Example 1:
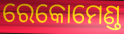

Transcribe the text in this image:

ରେକୋମେଣ୍ଡ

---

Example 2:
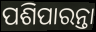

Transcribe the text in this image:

ପଶିପାରନ୍ତା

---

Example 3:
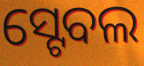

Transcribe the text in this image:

ସ୍ଟେବଲ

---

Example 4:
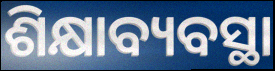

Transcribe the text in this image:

ଶିକ୍ଷାବ୍ୟବସ୍ଥା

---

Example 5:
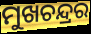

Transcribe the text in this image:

ମୁଖଚନ୍ଦ୍ରର